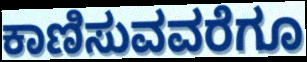
ಕಾಣಿಸುವವರೆಗೂ